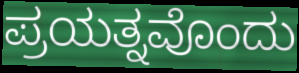
ಪ್ರಯತ್ನವೊಂದು